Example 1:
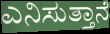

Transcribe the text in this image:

ಎನಿಸುತ್ತಾನೆ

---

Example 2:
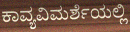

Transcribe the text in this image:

ಕಾವ್ಯವಿಮರ್ಶೆಯಲ್ಲಿ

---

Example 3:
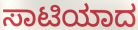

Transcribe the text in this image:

ಸಾಟಿಯಾದ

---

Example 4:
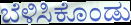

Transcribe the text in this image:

ಬೆಳಿಸಿಕೊಂಡು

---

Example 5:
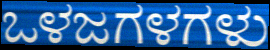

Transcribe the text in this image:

ಒಳಜಗಳಗಳು